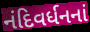
નંદિવર્ધનનાં